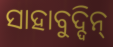
ସାହାବୁଦ୍ଦିନ୍